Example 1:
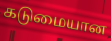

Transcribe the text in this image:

கடுமையான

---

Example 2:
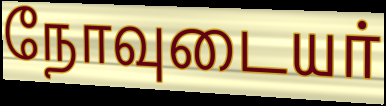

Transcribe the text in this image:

நோவுடையர்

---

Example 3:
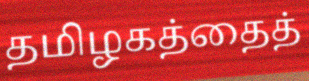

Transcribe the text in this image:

தமிழகத்தைத்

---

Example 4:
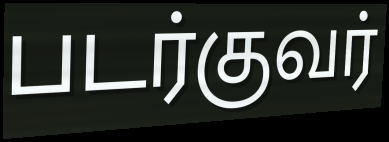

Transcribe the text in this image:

படர்குவர்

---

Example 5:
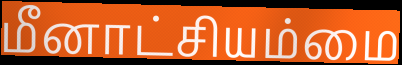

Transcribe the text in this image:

மீனாட்சியம்மை